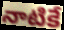
నాటికే